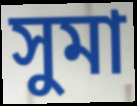
সুমা